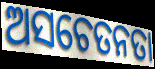
ଅସଚେତନତା